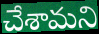
చేశామని